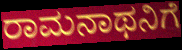
ರಾಮನಾಥನಿಗೆ